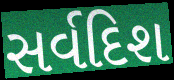
સર્વદિશ